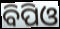
ବିପିଓ